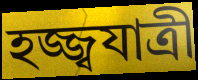
হজ্জ্বযাত্রী